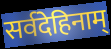
सर्वदेहिनाम्